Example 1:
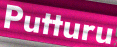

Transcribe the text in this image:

Putturu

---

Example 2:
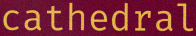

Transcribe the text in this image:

cathedral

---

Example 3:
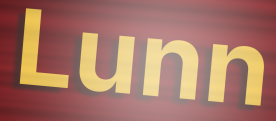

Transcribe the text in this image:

Lunn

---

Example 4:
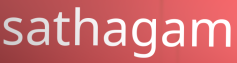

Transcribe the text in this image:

sathagam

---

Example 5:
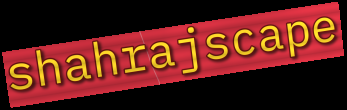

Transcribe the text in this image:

shahrajscape